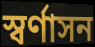
স্বর্ণাসন